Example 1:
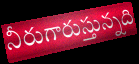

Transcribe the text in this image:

నీరుగారుస్తున్నది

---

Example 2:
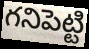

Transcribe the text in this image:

గనిపెట్టి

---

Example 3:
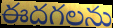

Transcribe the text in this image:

ఈదగలను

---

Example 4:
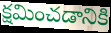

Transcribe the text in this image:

క్షమించడానికి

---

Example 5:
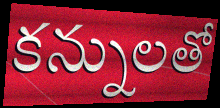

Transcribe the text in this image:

కన్నులతో